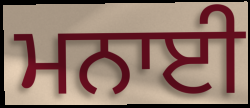
ਮਨਾਈ